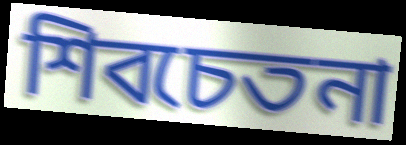
শিবচেতনা